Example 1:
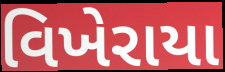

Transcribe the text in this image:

વિખેરાયા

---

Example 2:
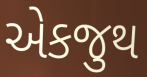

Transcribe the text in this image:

એકજુથ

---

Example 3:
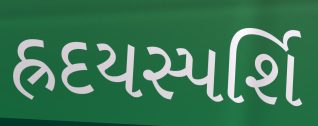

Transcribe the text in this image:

હ્રદયસ્પર્શિ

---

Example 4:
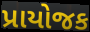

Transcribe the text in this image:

પ્રાયોજક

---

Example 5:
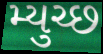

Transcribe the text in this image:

મ્યુચ્છ